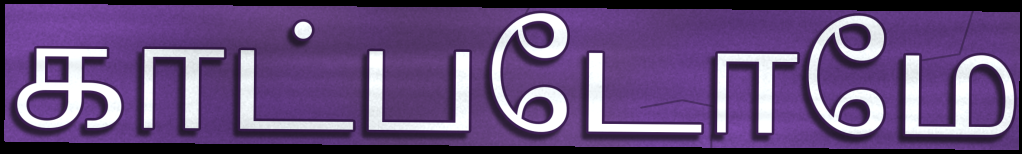
காட்படோமே